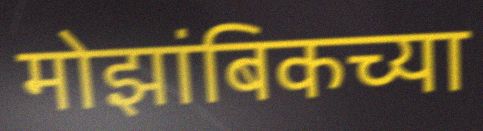
मोझांबिकच्या